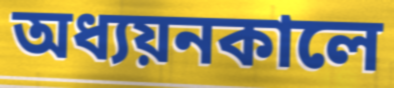
অধ্যয়নকালে